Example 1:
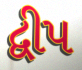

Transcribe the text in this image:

દ્વીપ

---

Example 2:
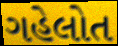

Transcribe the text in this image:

ગહેલોત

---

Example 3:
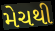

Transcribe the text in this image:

મેચથી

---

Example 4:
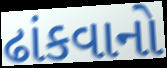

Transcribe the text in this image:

ઢાંકવાનો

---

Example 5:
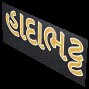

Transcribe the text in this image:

હાદાભટ્ટ